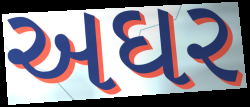
અઘર